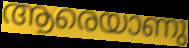
ആരെയാണു